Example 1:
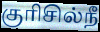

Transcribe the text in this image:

குரிசில்நீ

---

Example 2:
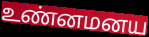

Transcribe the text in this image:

உண்னமனய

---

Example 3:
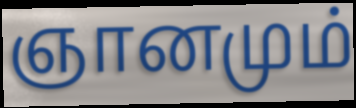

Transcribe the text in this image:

ஞானமும்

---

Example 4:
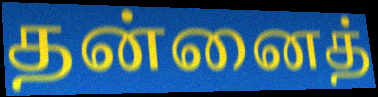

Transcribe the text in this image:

தன்னைத்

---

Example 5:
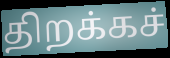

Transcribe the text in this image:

திறக்கச்